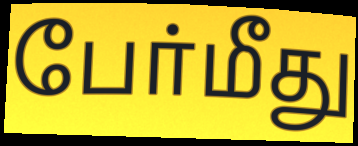
பேர்மீது